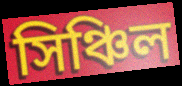
সিঞ্চিল